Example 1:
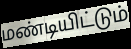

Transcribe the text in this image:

மண்டியிட்டும்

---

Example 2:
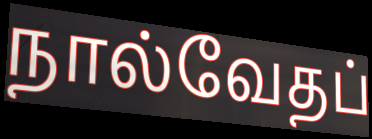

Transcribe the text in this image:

நால்வேதப்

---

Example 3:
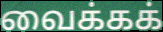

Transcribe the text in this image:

வைக்கக்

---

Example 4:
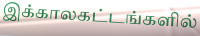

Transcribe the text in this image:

இக்காலகட்டங்களில்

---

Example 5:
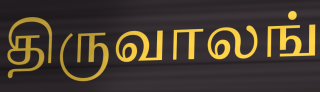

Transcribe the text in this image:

திருவாலங்